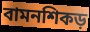
বামনশিকড়